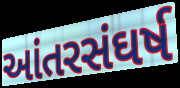
આંતરસંઘર્ષ